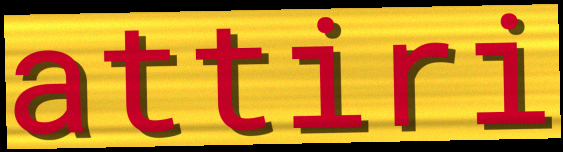
attiri